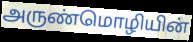
அருண்மொழியின்